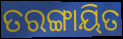
ତରଙ୍ଗାୟିତ